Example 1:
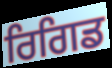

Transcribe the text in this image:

ਰਿਗਿਡ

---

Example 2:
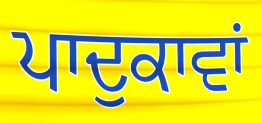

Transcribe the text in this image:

ਪਾਦੁਕਾਵਾਂ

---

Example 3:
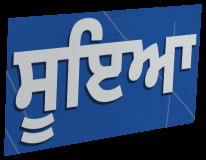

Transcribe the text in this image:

ਸੂਇਆ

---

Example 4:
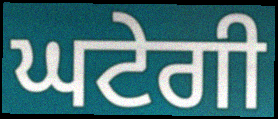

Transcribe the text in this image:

ਘਟੇਗੀ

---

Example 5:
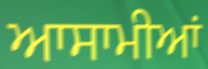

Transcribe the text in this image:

ਆਸਾਮੀਆਂ